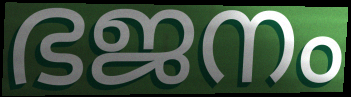
ഭജനം